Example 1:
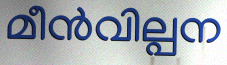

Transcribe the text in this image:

മീൻവില്പന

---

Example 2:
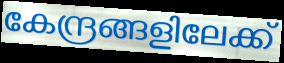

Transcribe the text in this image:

കേന്ദ്രങ്ങളിലേക്ക്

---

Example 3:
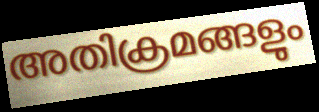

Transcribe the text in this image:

അതിക്രമങ്ങളും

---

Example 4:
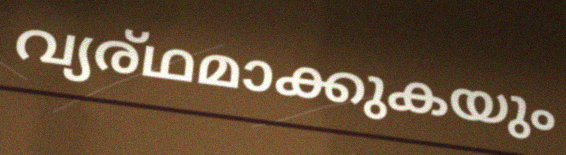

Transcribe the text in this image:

വ്യര്ഥമാക്കുകയും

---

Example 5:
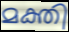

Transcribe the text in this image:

മക്തി